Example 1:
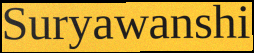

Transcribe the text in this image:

Suryawanshi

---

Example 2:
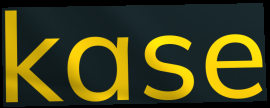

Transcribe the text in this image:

kase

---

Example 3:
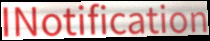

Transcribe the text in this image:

INotification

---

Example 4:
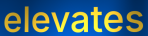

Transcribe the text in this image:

elevates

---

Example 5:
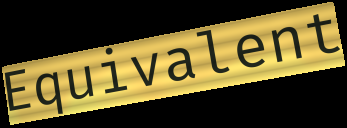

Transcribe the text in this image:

Equivalent